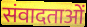
संवादताओं